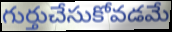
గుర్తుచేసుకోవడమే